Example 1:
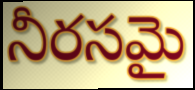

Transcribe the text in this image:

నీరసమై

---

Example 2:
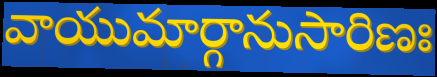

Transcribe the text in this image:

వాయుమార్గానుసారిణః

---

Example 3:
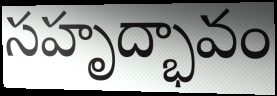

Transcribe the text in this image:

సహృద్భావం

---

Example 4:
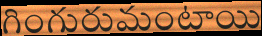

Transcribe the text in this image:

గింగురుమంటాయి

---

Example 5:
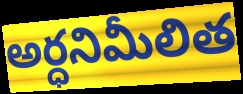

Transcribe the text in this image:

అర్ధనిమీలిత